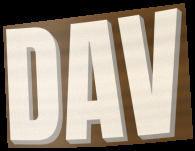
DAV